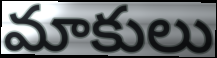
మాకులు